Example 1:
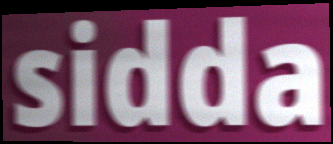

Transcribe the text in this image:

sidda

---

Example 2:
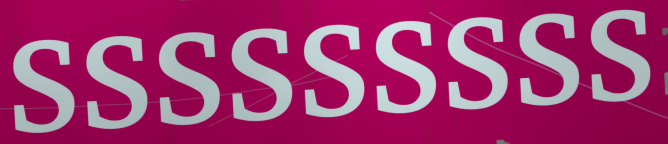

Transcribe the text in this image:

sssssssss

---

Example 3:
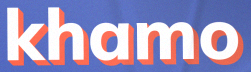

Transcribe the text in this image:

khamo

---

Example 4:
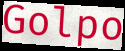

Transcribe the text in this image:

Golpo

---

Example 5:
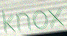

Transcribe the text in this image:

knox